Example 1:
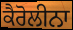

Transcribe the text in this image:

ਕੈਰੋਲੀਨਾ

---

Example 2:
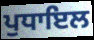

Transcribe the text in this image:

ਪੁਧਾਇਲ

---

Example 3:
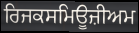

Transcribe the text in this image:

ਰਿਜਕਸਮਿਊਜ਼ੀਅਮ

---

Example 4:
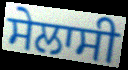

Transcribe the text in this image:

ਸੇਲਾਸੀ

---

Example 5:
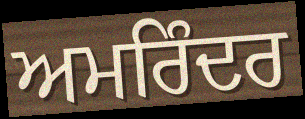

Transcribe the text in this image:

ਅਮਰਿੰਦਰ